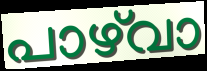
പാഴ്‌വാ